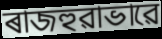
ৰাজহুৱাভাৱে